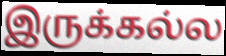
இருக்கல்ல